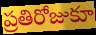
ప్రతిరోజుకూ